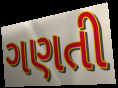
ગણતી